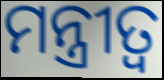
ମନ୍ତ୍ରୀତ୍ୱ